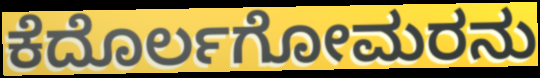
ಕೆದೊರ್ಲಗೋಮರನು